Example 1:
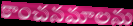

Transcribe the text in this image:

కాంచనమాలను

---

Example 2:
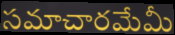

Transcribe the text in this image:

సమాచారమేమీ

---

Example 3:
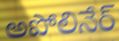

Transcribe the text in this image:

అపోలినేర్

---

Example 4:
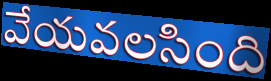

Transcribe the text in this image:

వేయవలసింది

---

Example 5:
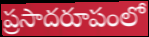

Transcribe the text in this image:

ప్రసాదరూపంలో